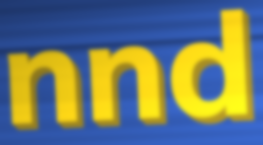
nnd